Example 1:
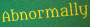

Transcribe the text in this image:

Abnormally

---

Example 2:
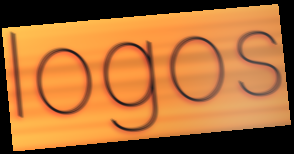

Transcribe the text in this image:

logos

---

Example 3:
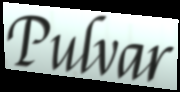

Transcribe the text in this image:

Pulvar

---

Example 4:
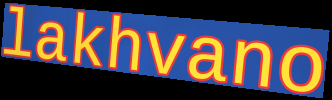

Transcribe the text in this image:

lakhvano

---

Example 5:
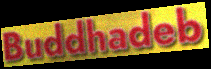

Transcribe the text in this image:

Buddhadeb